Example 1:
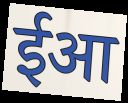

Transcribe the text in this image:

ईआ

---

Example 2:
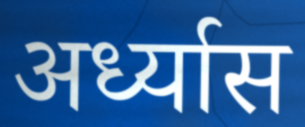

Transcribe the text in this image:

अर्ध्यास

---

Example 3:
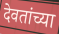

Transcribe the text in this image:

देवतांच्या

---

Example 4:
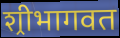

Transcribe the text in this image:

श्रीभागवत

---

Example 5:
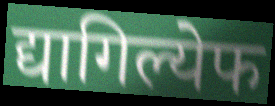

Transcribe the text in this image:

द्यागिल्येफ